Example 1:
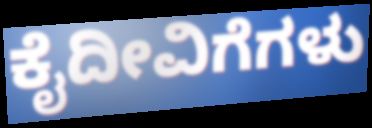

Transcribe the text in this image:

ಕೈದೀವಿಗೆಗಳು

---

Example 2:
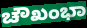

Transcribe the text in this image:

ಚೌಖಂಭಾ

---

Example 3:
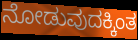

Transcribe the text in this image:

ನೋಡುವುದಕ್ಕಿಂತ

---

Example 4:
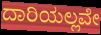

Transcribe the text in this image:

ದಾರಿಯಲ್ಲವೇ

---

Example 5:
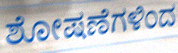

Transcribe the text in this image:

ಶೋಷಣೆಗಳಿಂದ